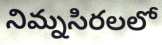
నిమ్నసిరలలో